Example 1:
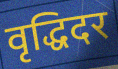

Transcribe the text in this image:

वृद्धिदर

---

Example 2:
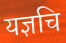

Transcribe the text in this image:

यज्ञचि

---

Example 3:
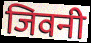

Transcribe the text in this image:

जिवनी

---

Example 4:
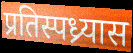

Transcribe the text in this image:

प्रतिस्पध्र्यास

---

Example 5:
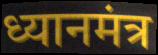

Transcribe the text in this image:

ध्यानमंत्र